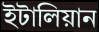
ইটালিয়ান